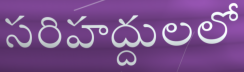
సరిహద్దులలో